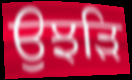
ਉਝੜਿ